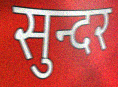
सुन्दर